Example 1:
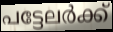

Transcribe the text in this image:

പട്ടേലർക്ക്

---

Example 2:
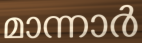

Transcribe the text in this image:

മാന്നാർ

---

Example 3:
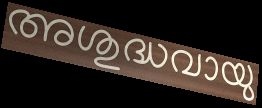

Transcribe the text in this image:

അശുദ്ധവായു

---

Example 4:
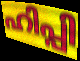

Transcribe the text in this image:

ഹിപ്പി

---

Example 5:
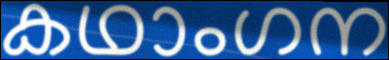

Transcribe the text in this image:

കഥാംഗന